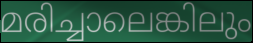
മരിച്ചാലെങ്കിലും